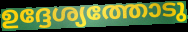
ഉദ്ദേശ്യത്തോടു